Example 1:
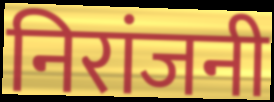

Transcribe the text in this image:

निरांजनी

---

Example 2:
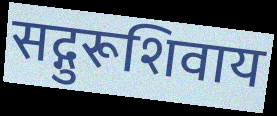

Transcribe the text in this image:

सद्गुरूशिवाय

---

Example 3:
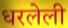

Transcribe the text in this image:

धरलेली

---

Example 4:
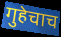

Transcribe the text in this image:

गुहेचाच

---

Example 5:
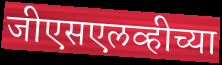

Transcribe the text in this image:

जीएसएलव्हीच्या